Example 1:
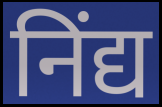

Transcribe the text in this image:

निंद्य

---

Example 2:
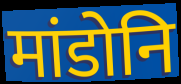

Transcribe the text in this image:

मांडोनि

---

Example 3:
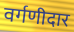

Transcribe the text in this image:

वर्गणीदार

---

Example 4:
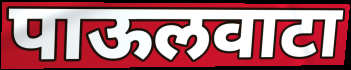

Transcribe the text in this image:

पाऊलवाटा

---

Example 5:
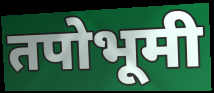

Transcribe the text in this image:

तपोभूमी